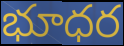
భూధర